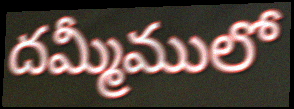
దమ్మీములో